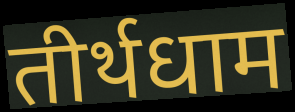
तीर्थधाम